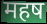
महष